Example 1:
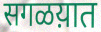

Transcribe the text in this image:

सगळय़ात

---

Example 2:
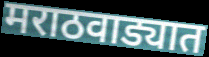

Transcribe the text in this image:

मराठवाड्यात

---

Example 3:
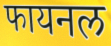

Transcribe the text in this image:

फायनल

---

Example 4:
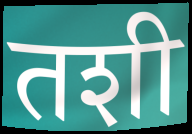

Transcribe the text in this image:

तशी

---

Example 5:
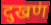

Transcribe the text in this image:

दुखणं